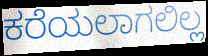
ಕರೆಯಲಾಗಲಿಲ್ಲ